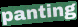
panting